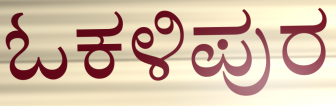
ಓಕಳಿಪುರ